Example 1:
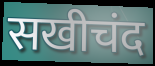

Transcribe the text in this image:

सखीचंद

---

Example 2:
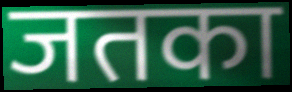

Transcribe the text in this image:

जतका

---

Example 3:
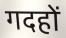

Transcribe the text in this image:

गदहों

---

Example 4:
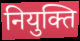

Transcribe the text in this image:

नियुक्ति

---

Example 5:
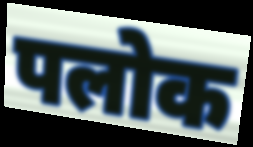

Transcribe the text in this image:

पलोक